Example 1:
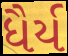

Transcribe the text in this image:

ધૈર્ય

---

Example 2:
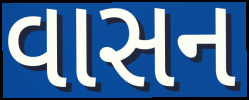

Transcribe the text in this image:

વાસન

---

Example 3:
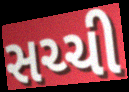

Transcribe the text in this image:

સચ્ચી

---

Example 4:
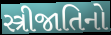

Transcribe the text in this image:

સ્ત્રીજાતિનો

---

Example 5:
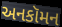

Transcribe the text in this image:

અનકૉમન